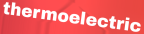
thermoelectric